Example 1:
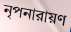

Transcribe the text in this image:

নৃপনারায়ণ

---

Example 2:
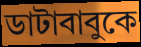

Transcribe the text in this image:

ডাটাবাবুকে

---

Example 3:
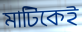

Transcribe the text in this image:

মাটিকেই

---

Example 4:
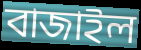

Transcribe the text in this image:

বাজাইল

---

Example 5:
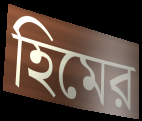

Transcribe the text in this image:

হিমের